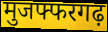
मुजफ्फरगढ़